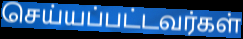
செய்யப்பட்டவர்கள்